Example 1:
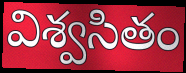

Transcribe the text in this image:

విశ్వసితం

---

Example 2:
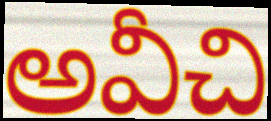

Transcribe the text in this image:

అవీచి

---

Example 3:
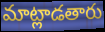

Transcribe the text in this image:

మాట్లాడతారు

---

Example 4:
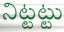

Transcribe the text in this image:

నిట్టట్టు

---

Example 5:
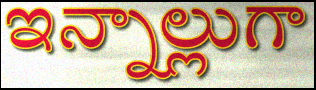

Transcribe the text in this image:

ఇన్నాల్లుగా